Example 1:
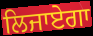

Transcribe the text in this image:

ਲਿਜਾਏਗਾ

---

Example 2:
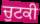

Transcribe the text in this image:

ਚੁਟਕੀ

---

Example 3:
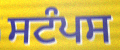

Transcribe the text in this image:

ਸਟੰਪਸ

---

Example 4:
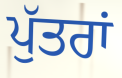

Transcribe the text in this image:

ਪੁੱਤਰਾਂ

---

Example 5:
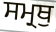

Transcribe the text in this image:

ਸਮ੍ਰਥੁ